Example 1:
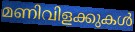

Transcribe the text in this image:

മണിവിളക്കുകൾ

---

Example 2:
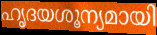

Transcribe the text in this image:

ഹൃദയശൂന്യമായി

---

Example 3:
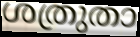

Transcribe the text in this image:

ശത്രുതാ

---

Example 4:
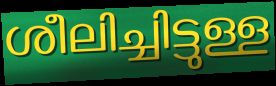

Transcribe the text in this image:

ശീലിച്ചിട്ടുള്ള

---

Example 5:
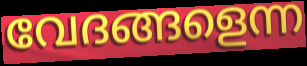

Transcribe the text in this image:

വേദങ്ങളെന്ന